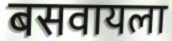
बसवायला